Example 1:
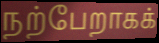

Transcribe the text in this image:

நற்பேறாகக்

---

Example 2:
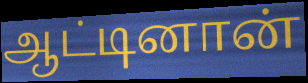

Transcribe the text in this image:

ஆட்டினான்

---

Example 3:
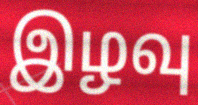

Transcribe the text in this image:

இழவு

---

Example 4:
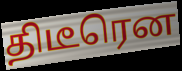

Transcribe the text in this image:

திடீரென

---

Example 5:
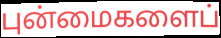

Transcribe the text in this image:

புன்மைகளைப்